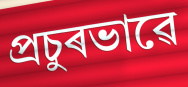
প্ৰচুৰভাৱে